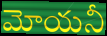
మోయనీ